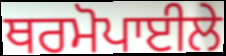
ਥਰਮੋਪਾਈਲੇ